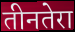
तीनतेरा